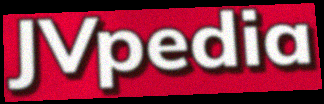
JVpedia